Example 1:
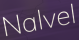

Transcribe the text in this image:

Nalvel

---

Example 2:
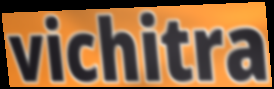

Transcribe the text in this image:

vichitra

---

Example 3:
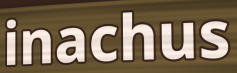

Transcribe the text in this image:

inachus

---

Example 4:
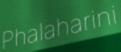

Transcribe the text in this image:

Phalaharini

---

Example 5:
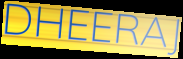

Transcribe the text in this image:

DHEERAJ